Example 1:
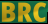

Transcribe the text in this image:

BRC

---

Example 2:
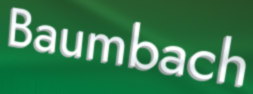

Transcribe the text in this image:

Baumbach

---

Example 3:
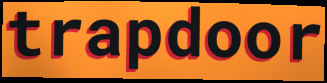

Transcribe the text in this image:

trapdoor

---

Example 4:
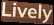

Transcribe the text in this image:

Lively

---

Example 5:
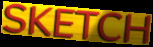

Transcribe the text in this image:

SKETCH